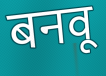
बनवू